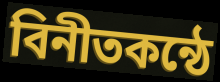
বিনীতকন্ঠে